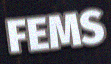
FEMS